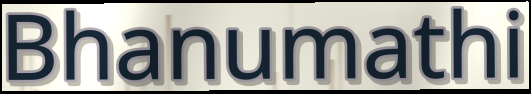
Bhanumathi